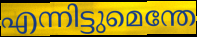
എന്നിട്ടുമെന്തേ